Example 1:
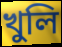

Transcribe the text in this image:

খুলি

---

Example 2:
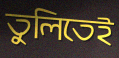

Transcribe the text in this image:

তুলিতেই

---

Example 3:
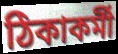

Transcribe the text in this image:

ঠিকাকর্মী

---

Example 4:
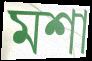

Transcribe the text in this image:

মশা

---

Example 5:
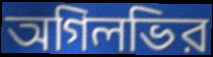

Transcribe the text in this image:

অগিলভির